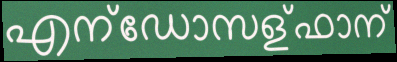
എന്ഡോസള്ഫാന്